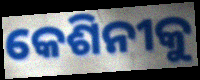
କେଶିନୀକୁ